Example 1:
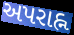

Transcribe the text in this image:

અપરાહ્ન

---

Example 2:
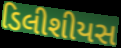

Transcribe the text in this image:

ડિલીશીયસ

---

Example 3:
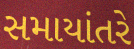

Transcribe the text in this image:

સમાયાંતરે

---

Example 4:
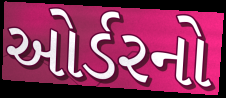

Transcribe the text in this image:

ઓર્ડરનો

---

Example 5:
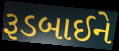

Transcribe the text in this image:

રૂડબાઈને